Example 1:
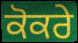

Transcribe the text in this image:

ਕੋਕਰੇ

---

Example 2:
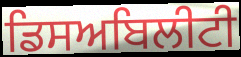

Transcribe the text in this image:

ਡਿਸਅਬਿਲੀਟੀ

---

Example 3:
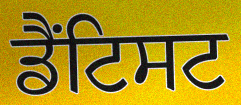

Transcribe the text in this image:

ਡੈਂਟਿਸਟ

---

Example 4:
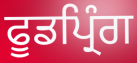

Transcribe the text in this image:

ਫੂਡਪ੍ਰਿੰਗ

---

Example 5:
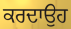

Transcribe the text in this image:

ਕਰਦਾਉਹ